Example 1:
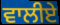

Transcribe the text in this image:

ਵਾਲੀਏ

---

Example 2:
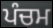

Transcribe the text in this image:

ਪੰਚਮ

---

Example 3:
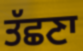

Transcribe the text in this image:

ਤੱਛਣਾ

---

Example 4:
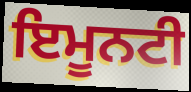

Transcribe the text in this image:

ਇਮੂਨਟੀ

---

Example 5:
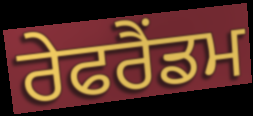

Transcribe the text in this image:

ਰੇਫਰੈਂਡਮ